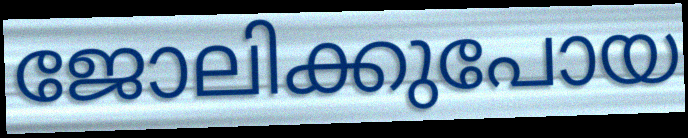
ജോലിക്കുപോയ